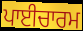
ਪਾਈਚਾਰਮ